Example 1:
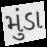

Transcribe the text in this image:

મુંડા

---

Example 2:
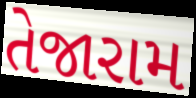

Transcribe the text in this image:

તેજારામ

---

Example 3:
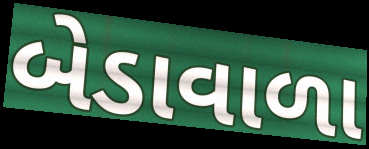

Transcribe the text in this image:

બેડાવાળા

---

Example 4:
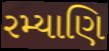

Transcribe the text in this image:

રમ્યાણિ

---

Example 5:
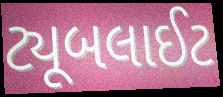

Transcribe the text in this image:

ટ્યૂબલાઈટ